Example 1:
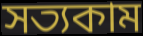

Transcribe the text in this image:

সত্যকাম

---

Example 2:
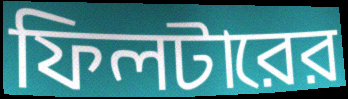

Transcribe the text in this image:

ফিলটারের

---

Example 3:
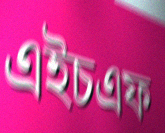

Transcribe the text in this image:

এইচএফ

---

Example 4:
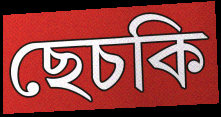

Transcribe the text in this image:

ছেচকি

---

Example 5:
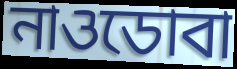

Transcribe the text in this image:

নাওডোবা